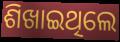
ଶିଖାଇଥିଲେ